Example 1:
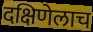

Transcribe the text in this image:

दक्षिणेलाच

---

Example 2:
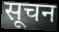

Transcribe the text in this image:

सूचन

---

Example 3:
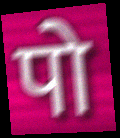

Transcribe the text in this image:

पो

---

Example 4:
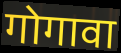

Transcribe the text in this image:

गोगावा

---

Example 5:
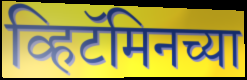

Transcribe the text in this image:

व्हिटॅमिनच्या